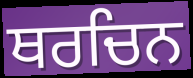
ਥਰਚਿਨ